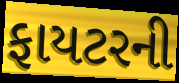
ફાયટરની